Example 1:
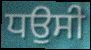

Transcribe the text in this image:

ਧਉਸੀ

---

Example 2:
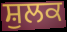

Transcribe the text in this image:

ਸ਼ੁਲਕ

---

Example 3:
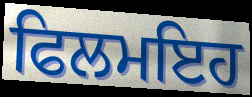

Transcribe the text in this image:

ਫਿਲਮਇਹ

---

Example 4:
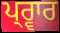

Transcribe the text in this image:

ਪ੍ਰ੍ਵਾਰ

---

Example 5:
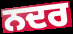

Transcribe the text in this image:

ਨਦਰ